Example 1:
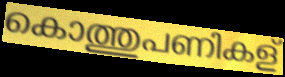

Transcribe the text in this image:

കൊത്തുപണികള്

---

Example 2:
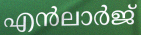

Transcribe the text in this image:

എൻലാർജ്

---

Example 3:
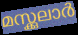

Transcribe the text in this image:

മസ്ക്കുലാർ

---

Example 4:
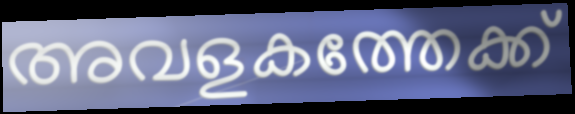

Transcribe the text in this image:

അവളകത്തേക്ക്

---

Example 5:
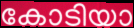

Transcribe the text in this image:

കോടിയാ